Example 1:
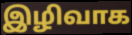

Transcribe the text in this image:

இழிவாக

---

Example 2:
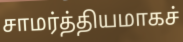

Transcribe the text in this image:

சாமர்த்தியமாகச்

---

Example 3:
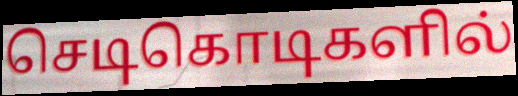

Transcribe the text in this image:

செடிகொடிகளில்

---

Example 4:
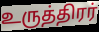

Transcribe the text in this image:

உருத்திரர்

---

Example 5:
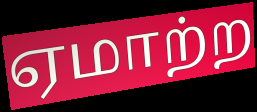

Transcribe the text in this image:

ஏமாற்ற